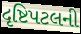
દૃષ્ટિપટલની